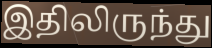
இதிலிருந்து